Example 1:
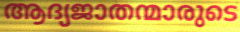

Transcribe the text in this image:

ആദ്യജാതന്മാരുടെ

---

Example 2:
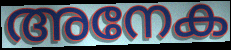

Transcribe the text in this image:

അനേക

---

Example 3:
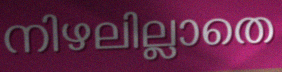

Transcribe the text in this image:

നിഴലില്ലാതെ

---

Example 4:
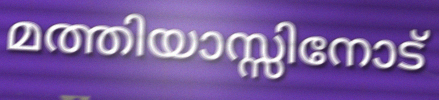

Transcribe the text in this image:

മത്തിയാസ്സിനോട്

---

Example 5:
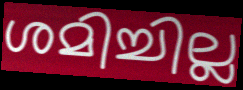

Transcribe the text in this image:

ശമിച്ചില്ല